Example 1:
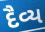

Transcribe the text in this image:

દૈવ્ય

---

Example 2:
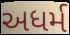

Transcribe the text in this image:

અધર્મ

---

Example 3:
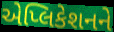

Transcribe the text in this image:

એપ્લિકેશનને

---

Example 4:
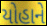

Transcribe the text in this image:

યોહાને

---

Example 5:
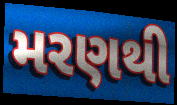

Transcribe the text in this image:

મરણથી